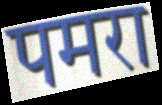
पमरा